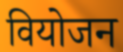
वियोजन